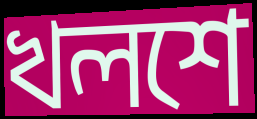
খলশে